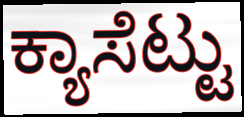
ಕ್ಯಾಸೆಟ್ಟು